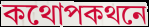
কথোপকথনে